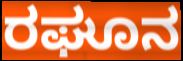
ರಘೂನ